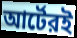
আর্টেরই